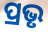
ପ୍ରଭୃ